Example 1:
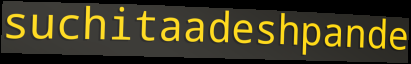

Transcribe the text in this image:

suchitaadeshpande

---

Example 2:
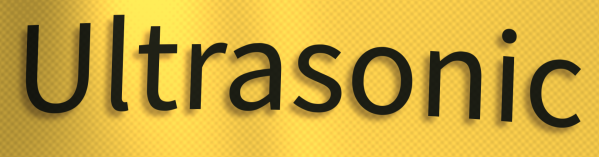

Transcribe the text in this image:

Ultrasonic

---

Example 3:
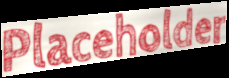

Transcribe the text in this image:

Placeholder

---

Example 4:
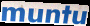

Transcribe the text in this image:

muntu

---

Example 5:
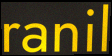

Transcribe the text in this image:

ranil